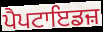
ਪੈਪਟਾਇਡਜ਼